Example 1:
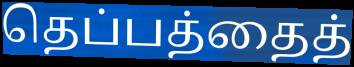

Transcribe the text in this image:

தெப்பத்தைத்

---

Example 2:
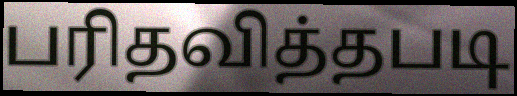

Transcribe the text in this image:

பரிதவித்தபடி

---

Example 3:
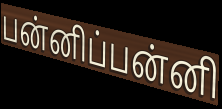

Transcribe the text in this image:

பன்னிப்பன்னி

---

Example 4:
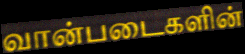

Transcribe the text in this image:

வான்படைகளின்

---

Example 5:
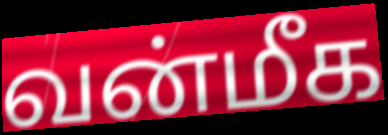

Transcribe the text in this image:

வன்மீக